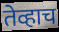
तेव्हाच